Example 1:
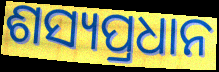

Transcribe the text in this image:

ଶସ୍ୟପ୍ରଧାନ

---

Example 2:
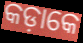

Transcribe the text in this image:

କଡ଼ାକେ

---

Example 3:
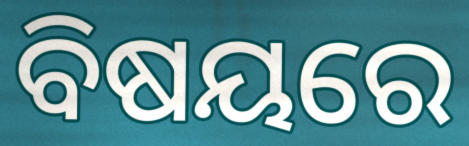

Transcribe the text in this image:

ବିଷୟରେ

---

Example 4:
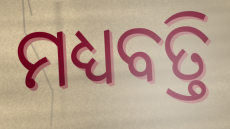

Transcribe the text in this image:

ମଧ୍ୟବତ୍ତି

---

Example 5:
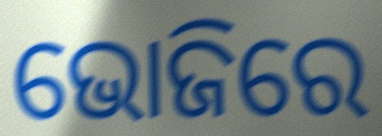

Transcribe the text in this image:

ଭୋଜିରେ